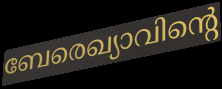
ബേരെഖ്യാവിന്റെ